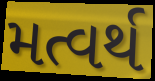
મત્વર્થ